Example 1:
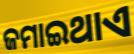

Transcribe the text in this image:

ଜମାଇଥାଏ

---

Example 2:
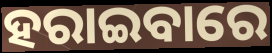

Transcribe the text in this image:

ହରାଇବାରେ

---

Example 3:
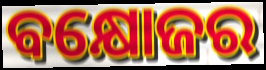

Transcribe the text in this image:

ବକ୍ଷୋଜର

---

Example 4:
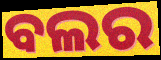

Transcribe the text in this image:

ବଲର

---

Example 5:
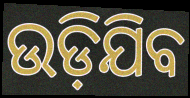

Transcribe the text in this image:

ଉଡ଼ିଯିବ